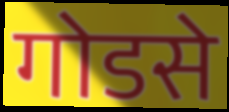
गोडसे